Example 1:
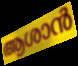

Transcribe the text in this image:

ആശാൻ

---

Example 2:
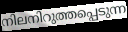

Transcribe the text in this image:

നിലനിറുത്തപ്പെടുന്ന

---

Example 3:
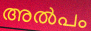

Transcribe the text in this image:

അൽപം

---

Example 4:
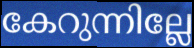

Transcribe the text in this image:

കേറുന്നില്ലേ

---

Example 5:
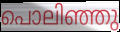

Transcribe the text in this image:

പൊലിഞ്ഞു